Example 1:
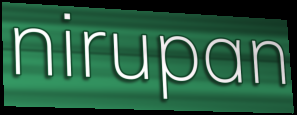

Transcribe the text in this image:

nirupan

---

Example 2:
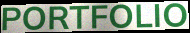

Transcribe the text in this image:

PORTFOLIO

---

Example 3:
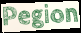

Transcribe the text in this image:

Pegion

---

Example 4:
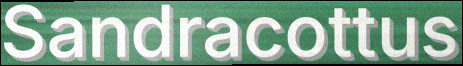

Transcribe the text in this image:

Sandracottus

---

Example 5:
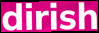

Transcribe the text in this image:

dirish